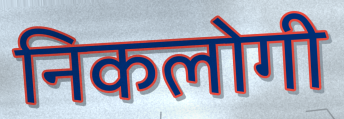
निकलोगी